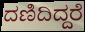
ದಣಿದಿದ್ದರೆ